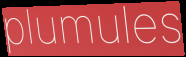
plumules